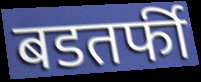
बडतर्फी